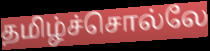
தமிழ்ச்சொல்லே